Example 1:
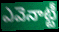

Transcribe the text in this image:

ఎవెనాట్టీ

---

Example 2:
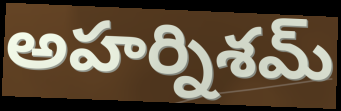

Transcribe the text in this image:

అహర్నిశమ్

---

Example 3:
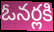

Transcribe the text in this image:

ఓనర్లకి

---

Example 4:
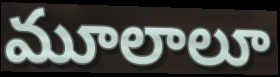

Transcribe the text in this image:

మూలాలూ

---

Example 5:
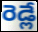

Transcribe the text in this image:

రెడ్లే